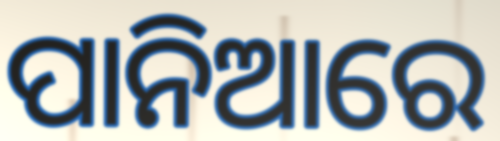
ପାନିଆରେ